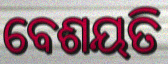
ବେଶୟତି